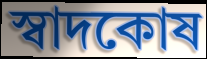
স্বাদকোষ